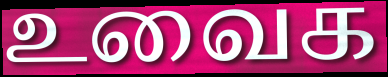
உவைக